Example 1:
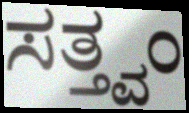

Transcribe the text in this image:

ಸತ್ತ್ವಂ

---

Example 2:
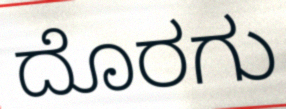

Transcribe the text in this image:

ದೊರಗು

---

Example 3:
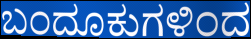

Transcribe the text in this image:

ಬಂದೂಕುಗಳಿಂದ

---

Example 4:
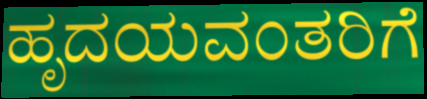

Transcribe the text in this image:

ಹೃದಯವಂತರಿಗೆ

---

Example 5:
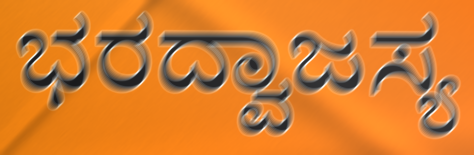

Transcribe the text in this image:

ಭರದ್ವಾಜಸ್ಯ